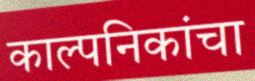
काल्पनिकांचा